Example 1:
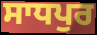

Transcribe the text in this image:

ਸਾਧਪੁਰ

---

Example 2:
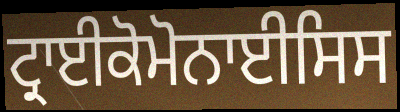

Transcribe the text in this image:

ਟ੍ਰਾਈਕੋਮੋਨਾਈਸਿਸ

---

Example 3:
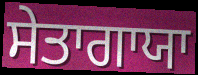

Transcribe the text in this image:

ਸੇਤਾਗਾਯਾ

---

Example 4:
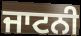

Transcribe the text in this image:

ਜਾਟਨੀ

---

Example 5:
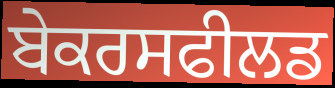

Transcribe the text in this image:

ਬੇਕਰਸਫੀਲਡ